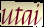
utai